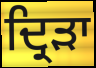
ਦ੍ਰਿੜਾ